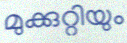
മുക്കുറ്റിയും